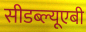
सीडब्ल्यूएबी